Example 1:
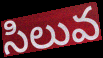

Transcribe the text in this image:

సిలువ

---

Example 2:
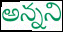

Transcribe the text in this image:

అన్నని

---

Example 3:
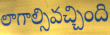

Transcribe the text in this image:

లాగాల్సివచ్చింది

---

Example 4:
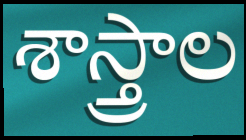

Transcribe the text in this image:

శాస్త్రాల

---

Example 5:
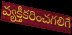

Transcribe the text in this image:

వ్యక్తీకరించగలిగే